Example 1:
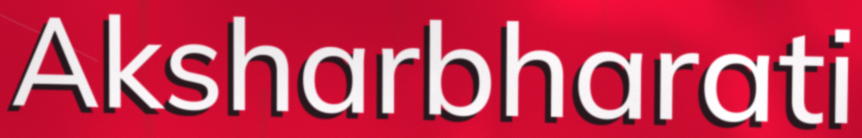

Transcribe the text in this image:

Aksharbharati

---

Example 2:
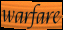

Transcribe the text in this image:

warfare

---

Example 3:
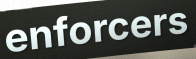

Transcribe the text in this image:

enforcers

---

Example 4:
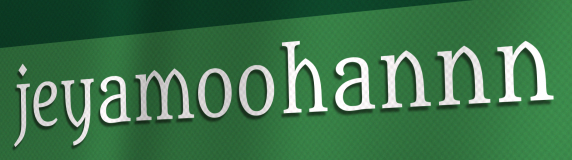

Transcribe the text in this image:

jeyamoohannn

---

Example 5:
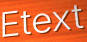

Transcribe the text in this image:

Etext